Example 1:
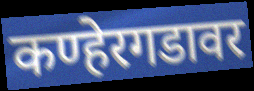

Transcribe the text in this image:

कण्हेरगडावर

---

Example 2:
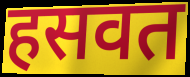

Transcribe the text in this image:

हसवत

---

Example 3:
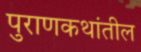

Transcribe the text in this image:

पुराणकथांतील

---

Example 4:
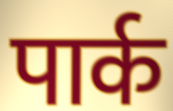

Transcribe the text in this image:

पार्क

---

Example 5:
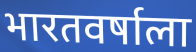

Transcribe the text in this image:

भारतवर्षाला